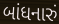
બાંધનારું